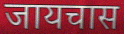
जायचास